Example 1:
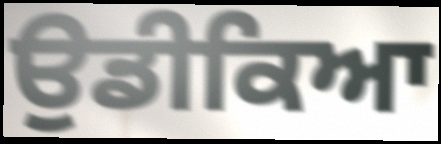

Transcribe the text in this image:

ਉਡੀਕਿਆ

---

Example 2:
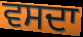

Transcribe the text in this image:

ਵਸਦਾ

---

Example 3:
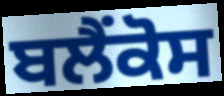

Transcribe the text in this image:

ਬਲੈਂਕੋਸ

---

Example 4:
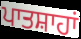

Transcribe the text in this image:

ਪਾਤਸ਼ਾਹਾਂ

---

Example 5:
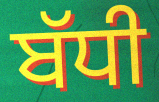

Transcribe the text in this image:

ਬੱਧੀ